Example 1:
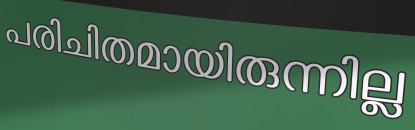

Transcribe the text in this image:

പരിചിതമായിരുന്നില്ല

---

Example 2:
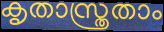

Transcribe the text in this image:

കൃതാസ്ത്രതാം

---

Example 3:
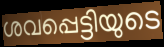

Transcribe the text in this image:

ശവപ്പെട്ടിയുടെ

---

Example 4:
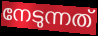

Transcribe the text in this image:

നേടുന്നത്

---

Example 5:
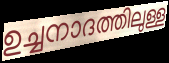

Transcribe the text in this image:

ഉച്ചനാദത്തിലുള്ള